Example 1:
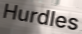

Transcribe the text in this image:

Hurdles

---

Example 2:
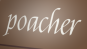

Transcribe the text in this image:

poacher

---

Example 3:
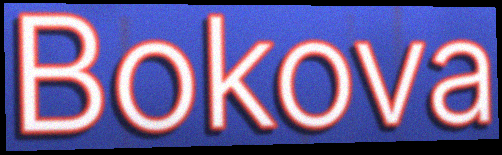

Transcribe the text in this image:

Bokova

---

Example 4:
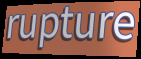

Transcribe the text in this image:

rupture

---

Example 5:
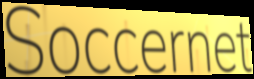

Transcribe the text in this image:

Soccernet